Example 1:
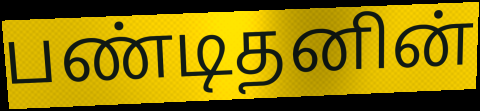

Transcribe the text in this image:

பண்டிதனின்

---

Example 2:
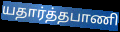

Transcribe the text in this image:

யதார்த்தபாணி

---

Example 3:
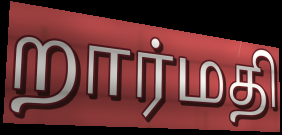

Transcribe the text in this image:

றார்மதி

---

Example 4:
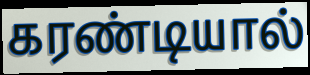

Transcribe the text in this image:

கரண்டியால்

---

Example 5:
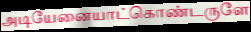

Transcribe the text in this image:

அடியேனையாட்கொண்டருளே